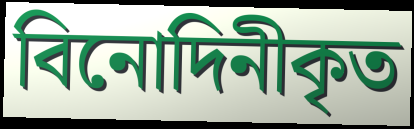
বিনোদিনীকৃত